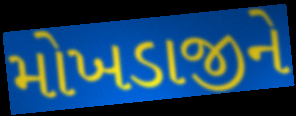
મોખડાજીને